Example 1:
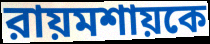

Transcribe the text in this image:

রায়মশায়কে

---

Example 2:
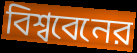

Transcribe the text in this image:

বিশ্ববেনের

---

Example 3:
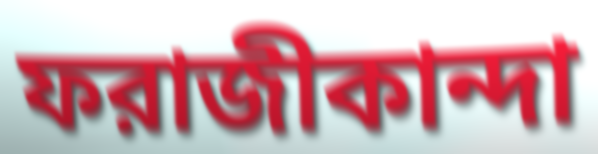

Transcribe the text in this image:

ফরাজীকান্দা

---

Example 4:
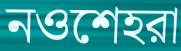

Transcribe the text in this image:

নওশেহরা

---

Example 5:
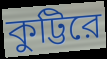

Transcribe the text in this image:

কুট্টিরে